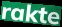
rakte